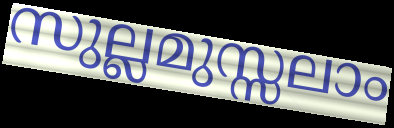
സുല്ലമുസ്സലാം